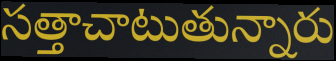
సత్తాచాటుతున్నారు